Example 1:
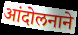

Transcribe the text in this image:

आंदोलनाने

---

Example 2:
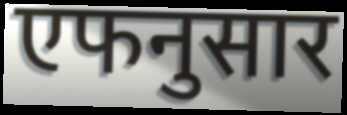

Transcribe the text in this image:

एफनुसार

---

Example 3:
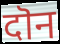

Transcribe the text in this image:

दॊन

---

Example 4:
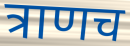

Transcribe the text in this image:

त्राणच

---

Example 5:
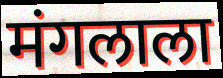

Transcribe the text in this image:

मंगलाला